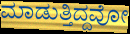
ಮಾಡುತ್ತಿದ್ದವೋ